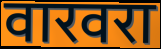
वारवरा